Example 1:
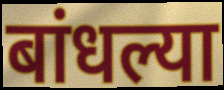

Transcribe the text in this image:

बांधल्या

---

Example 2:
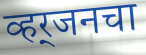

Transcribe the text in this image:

व्हर्जनचा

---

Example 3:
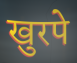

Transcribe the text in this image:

खुरपे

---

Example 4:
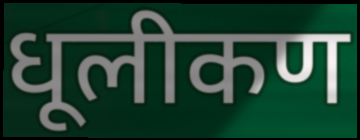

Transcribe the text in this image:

धूलीकण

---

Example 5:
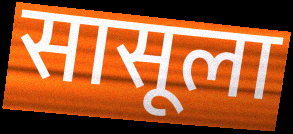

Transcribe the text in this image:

सासूला